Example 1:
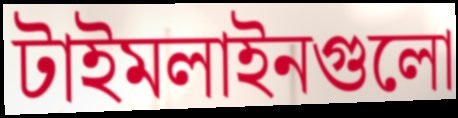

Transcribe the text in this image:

টাইমলাইনগুলো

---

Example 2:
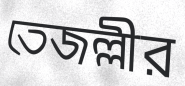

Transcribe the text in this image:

তেজল্লীর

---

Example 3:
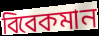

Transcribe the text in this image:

বিবেকমান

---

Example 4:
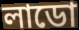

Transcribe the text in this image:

লাডো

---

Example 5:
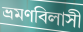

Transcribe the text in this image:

ভ্রমণবিলাসী